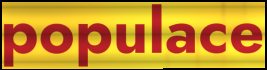
populace